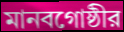
মানবগোষ্ঠীর